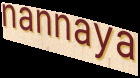
nannaya